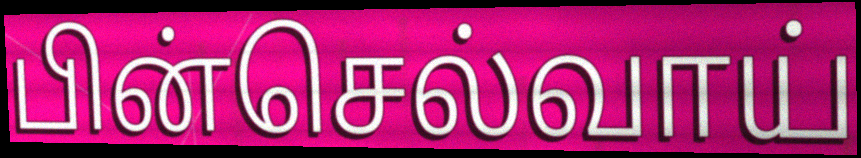
பின்செல்வாய்